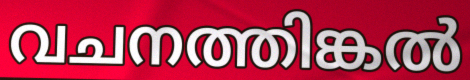
വചനത്തിങ്കൽ